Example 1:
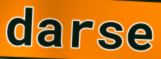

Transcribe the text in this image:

darse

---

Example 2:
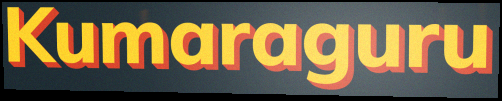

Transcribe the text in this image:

Kumaraguru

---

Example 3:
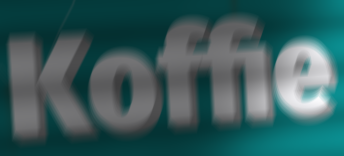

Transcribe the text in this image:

Koffie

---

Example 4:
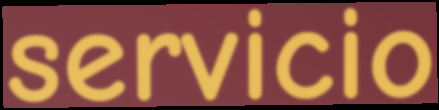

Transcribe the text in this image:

servicio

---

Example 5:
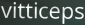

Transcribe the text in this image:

vitticeps